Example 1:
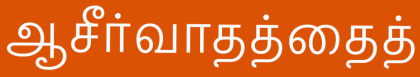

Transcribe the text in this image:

ஆசீர்வாதத்தைத்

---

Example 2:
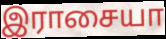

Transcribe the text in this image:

இராசையா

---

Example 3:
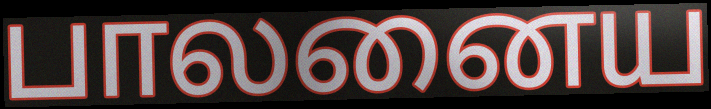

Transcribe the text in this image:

பாலனைய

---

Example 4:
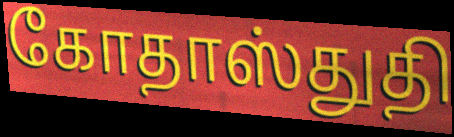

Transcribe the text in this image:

கோதாஸ்துதி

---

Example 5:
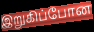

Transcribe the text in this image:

இறுகிப்போன